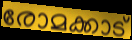
രോമക്കാട്